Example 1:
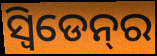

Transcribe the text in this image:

ସ୍ୱିଡେନ୍‌ର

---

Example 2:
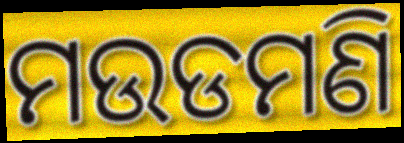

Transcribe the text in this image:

ମଉଡମଣି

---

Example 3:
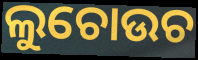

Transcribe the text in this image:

ଲୁଚୋଉଚ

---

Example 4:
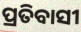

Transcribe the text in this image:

ପ୍ରତିବାସୀ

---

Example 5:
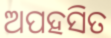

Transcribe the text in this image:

ଅପହସିତ